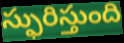
స్ఫురిస్తుంది